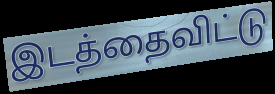
இடத்தைவிட்டு